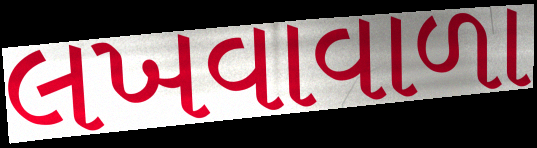
લખવાવાળા